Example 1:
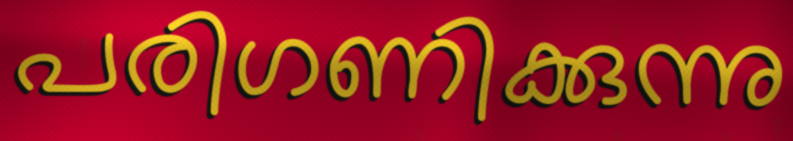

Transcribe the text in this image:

പരിഗണിക്കുന്നു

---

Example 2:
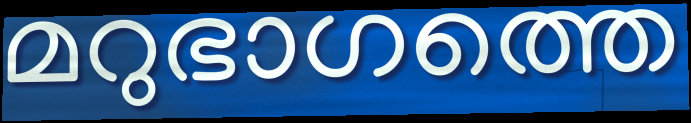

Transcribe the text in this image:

മറുഭാഗത്തെ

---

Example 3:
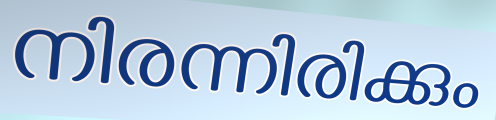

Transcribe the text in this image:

നിരന്നിരിക്കും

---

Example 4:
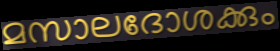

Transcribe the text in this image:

മസാലദോശക്കും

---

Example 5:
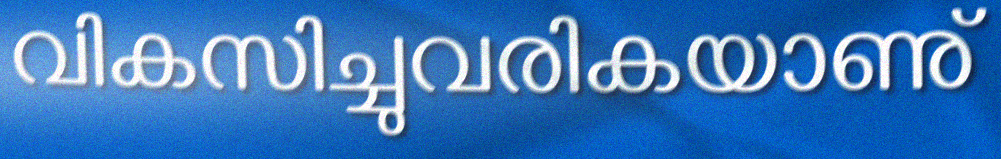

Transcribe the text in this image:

വികസിച്ചുവരികയാണു്